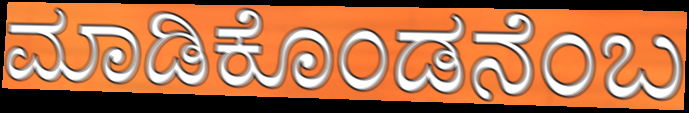
ಮಾಡಿಕೊಂಡನೆಂಬ